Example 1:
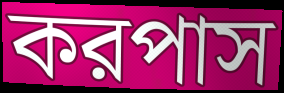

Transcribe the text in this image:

করপাস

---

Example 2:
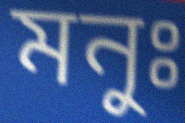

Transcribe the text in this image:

মনুঃ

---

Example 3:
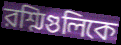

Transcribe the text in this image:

রশ্মিগুলিকে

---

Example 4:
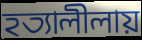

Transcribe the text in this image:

হত্যালীলায়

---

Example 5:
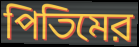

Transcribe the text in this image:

পিতিমের